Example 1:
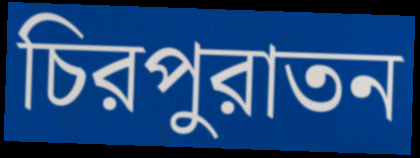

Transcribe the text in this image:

চিরপুরাতন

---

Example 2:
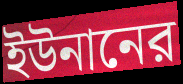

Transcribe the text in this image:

ইউনানের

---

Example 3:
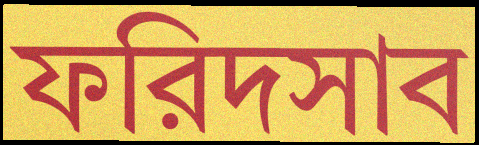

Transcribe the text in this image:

ফরিদসাব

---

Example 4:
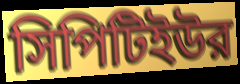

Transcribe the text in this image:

সিপিটিইউর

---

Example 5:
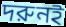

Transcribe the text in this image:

দরুনই